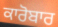
ਕਾਰੋਬਾਰ